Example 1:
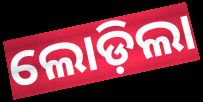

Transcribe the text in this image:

ଲୋଡ଼ିଲା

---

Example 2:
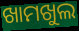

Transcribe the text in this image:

ଖାମଖୁଲ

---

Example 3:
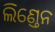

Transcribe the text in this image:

ଲିଣ୍ଡେନ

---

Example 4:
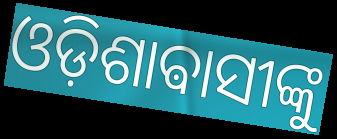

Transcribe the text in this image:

ଓଡ଼ିଶାଵାସୀଙ୍କୁ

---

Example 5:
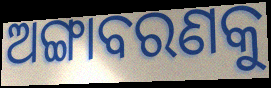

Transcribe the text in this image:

ଅଙ୍ଗାବରଣକୁ